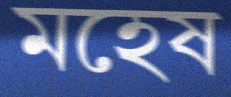
মহেষ